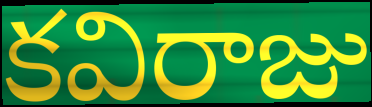
కవిరాజు